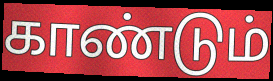
காண்டும்